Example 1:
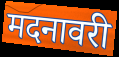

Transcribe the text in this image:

मदनावरी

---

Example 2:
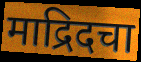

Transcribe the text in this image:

माद्रिदचा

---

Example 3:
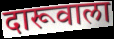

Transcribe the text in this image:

दारूवाला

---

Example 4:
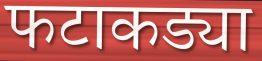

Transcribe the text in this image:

फटाकड्या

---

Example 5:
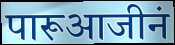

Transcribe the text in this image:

पारूआजीनं